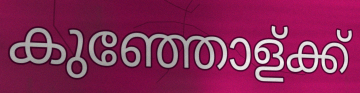
കുഞ്ഞോള്ക്ക്